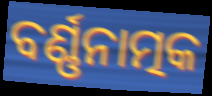
ବର୍ଣ୍ଣନାତ୍ମକ